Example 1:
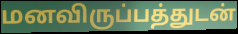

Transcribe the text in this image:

மனவிருப்பத்துடன்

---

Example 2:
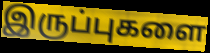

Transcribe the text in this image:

இருப்புகளை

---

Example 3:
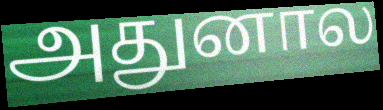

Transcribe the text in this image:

அதுனால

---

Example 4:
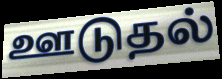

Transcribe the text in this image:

ஊடுதல்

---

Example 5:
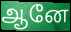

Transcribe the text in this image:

ஆனே